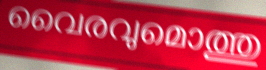
വൈരവുമൊത്തു